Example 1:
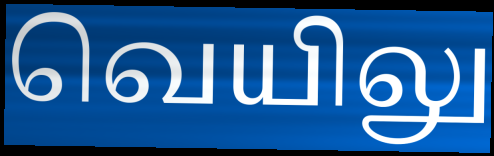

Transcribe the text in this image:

வெயிலு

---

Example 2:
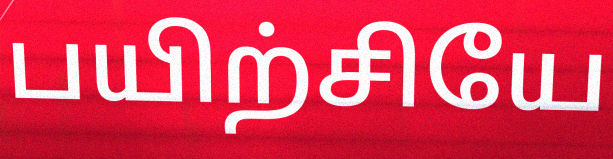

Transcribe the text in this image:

பயிற்சியே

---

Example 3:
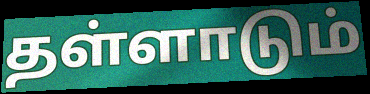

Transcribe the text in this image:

தள்ளாடும்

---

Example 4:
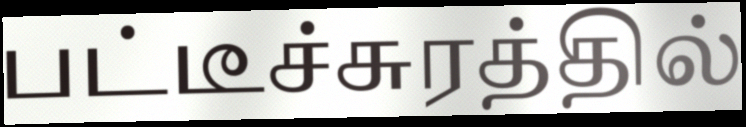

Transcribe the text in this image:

பட்டீச்சுரத்தில்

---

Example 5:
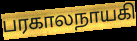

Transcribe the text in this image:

பரகாலநாயகி